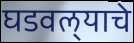
घडवल्याचे